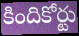
కిందికోర్టు